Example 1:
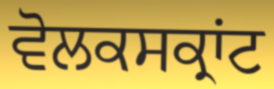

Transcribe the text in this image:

ਵੋਲਕਸਕ੍ਰਾਂਟ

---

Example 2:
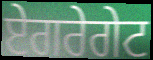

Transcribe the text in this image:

ਏਗਰੇਗੇਟ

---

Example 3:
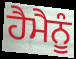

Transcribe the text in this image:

ਹੈਮੈਨੂੰ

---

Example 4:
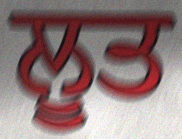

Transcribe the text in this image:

ਲੂਤ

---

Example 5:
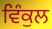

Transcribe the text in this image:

ਵਿੰਕੁਲ